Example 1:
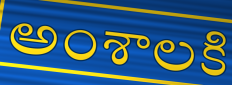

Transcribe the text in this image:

అంశాలకి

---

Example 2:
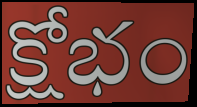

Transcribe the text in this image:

క్షోభం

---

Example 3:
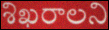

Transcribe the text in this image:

శిఖరాలని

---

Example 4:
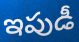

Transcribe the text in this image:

ఇపుడీ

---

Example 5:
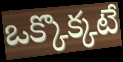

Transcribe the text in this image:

ఒక్కొక్కటే